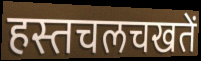
हस्तचलचखतें